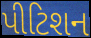
પીટિશન